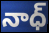
నాధ్